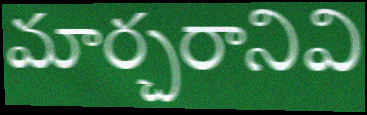
మార్చరానివి